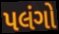
પલંગો